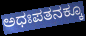
ಅಧಃಪತನಕ್ಕೂ